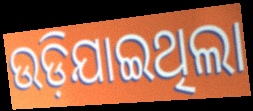
ଉଡ଼ିଯାଇଥିଲା